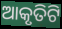
ଆକୃତିଟି